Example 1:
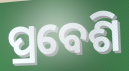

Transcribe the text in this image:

ପ୍ରବେଶି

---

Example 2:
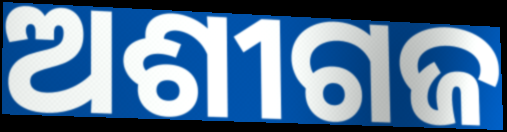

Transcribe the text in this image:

ଅଶୀଗଜ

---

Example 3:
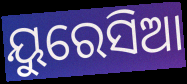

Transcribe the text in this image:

ୟୁରେସିଆ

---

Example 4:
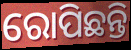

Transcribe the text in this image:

ରୋପିଛନ୍ତି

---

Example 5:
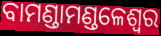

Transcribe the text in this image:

ବାମଣ୍ଡାମଣ୍ଡଳେଶ୍ୱର